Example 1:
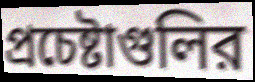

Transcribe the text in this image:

প্রচেষ্টাগুলির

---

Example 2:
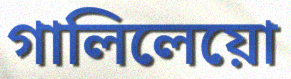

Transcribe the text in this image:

গালিলেয়ো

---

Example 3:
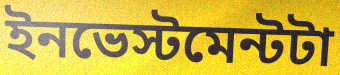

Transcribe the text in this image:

ইনভেস্টমেন্টটা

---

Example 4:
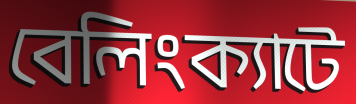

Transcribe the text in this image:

বেলিংক্যাটে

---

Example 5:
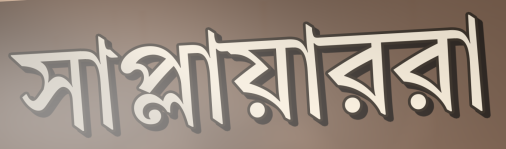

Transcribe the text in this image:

সাপ্লায়াররা